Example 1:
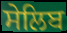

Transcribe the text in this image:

ਸੇਲਿਬ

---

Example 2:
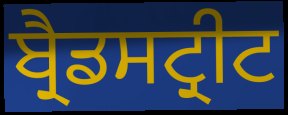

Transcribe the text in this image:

ਬ੍ਰੈਡਸਟ੍ਰੀਟ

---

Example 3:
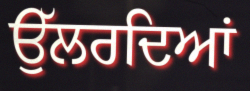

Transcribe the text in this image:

ਉੱਲਰਦਿਆਂ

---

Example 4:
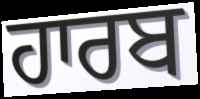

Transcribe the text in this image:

ਹਾਰਬ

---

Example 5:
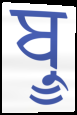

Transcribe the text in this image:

ਬ੍ਰੂ